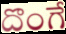
దొంగే